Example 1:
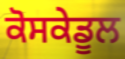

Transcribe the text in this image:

ਕੋਸਕੇਡੂਲ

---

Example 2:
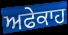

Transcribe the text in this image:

ਅਫੇਕਾਹ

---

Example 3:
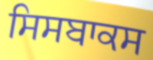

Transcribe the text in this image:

ਸਿਸਬਾਕਸ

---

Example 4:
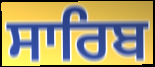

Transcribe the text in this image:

ਸਾਰਿਬ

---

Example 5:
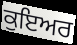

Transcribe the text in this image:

ਕੁਇਅਰ